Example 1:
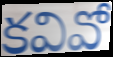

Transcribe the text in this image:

కవివో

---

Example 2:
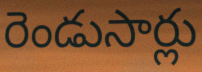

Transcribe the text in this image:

రెండుసార్లు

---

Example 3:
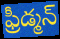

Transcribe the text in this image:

ఫ్రీడ్మన్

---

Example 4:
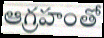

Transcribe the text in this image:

ఆగ్రహంతో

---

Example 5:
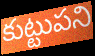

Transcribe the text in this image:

కుట్టుపని